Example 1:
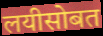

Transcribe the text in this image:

लयीसोबत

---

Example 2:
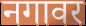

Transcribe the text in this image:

नगावर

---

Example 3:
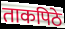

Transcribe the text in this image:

ताकपिठे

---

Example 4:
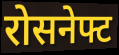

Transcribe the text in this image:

रोसनेफ्ट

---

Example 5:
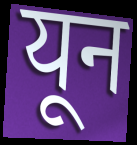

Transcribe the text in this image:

यून